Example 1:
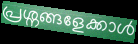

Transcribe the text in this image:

പ്രശ്നങ്ങളേക്കാൾ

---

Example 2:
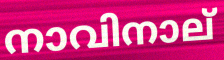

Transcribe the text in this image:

നാവിനാല്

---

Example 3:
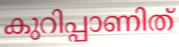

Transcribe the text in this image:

കുറിപ്പാണിത്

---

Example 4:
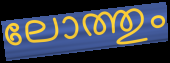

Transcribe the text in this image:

ലോത്തും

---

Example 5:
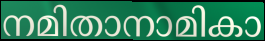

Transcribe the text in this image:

നമിതാനാമികാ